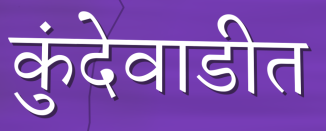
कुंदेवाडीत